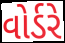
વોર્ડરે